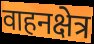
वाहनक्षेत्र